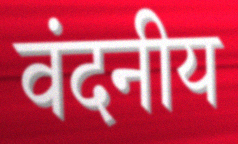
वंदनीय